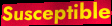
Susceptible